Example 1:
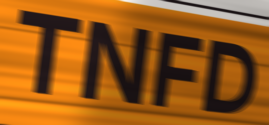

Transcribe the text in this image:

TNFD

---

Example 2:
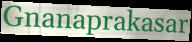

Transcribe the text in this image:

Gnanaprakasar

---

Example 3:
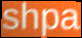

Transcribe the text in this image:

shpa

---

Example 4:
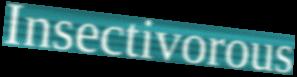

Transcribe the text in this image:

Insectivorous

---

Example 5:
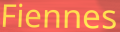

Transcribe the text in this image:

Fiennes